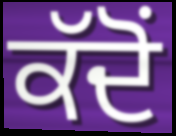
ਕੱਦੋਂ